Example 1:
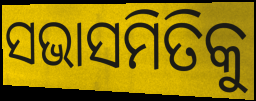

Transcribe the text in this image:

ସଭାସମିତିକୁ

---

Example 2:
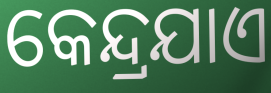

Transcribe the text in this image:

କେନ୍ଦ୍ରଯାଏ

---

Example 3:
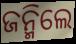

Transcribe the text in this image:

ଜନ୍ମିଲେ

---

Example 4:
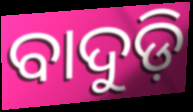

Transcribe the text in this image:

ବାଦୁଡ଼ି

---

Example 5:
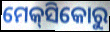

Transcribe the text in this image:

ମେକ୍‌ସିକୋରୁ